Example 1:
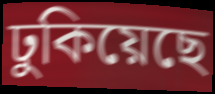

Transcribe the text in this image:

ঢুকিয়েছে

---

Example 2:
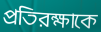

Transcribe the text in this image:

প্রতিরক্ষাকে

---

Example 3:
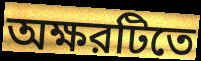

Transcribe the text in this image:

অক্ষরটিতে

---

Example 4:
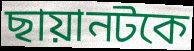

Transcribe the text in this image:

ছায়ানটকে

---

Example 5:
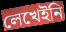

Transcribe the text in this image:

লেখেইনি